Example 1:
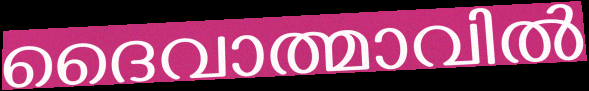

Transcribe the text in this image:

ദൈവാത്മാവിൽ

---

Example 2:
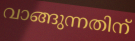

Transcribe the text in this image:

വാങ്ങുന്നതിന്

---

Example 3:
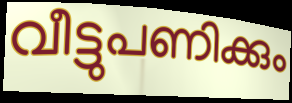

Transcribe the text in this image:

വീട്ടുപണിക്കും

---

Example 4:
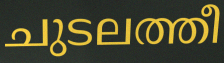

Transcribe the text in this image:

ചുടലത്തീ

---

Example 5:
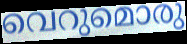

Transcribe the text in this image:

വെറുമൊരു